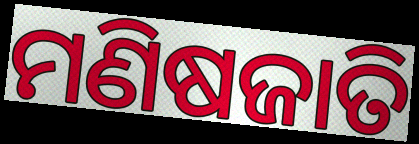
ମଣିଷଜାତି